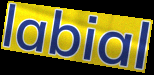
labial